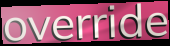
override